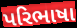
પરિભાષા